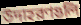
উদাহরণগুলি